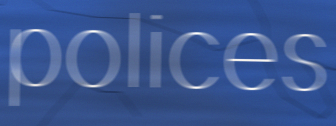
polices